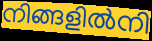
നിങ്ങളിൽനി